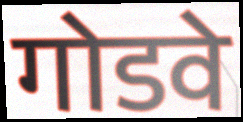
गोडवे